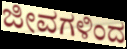
ಜೀವಗಳಿಂದ